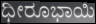
ಧೀರೂಭಾಯಿ